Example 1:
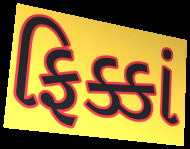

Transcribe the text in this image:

ફિક્કાં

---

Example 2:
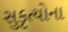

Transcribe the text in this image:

સુકૃત્યોના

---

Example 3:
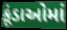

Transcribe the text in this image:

કૂંડાઓમાં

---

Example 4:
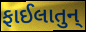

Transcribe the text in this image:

ફાઈલાતુન્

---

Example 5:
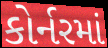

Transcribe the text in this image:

કોર્નરમાં